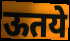
ऊतये